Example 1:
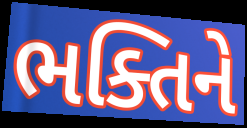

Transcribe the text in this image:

ભક્તિને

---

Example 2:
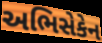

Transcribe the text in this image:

અભિસેકેન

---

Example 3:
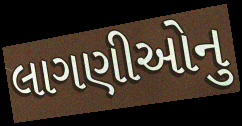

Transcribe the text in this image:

લાગણીઓનુ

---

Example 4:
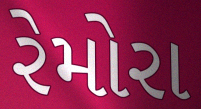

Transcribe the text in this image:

રેમોરા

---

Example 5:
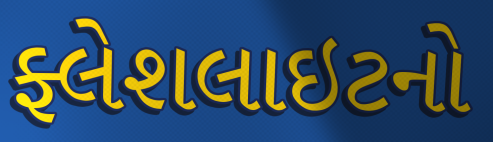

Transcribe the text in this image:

ફ્લેશલાઇટનો